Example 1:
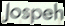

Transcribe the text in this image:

Jospeh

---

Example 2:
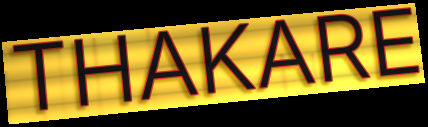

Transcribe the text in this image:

THAKARE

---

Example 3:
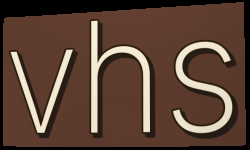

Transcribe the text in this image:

vhs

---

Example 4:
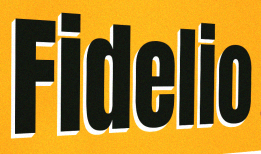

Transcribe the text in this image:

Fidelio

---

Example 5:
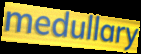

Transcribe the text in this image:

medullary